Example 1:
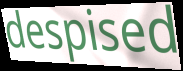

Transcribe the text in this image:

despised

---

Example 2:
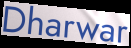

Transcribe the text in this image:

Dharwar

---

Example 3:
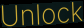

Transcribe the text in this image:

Unlock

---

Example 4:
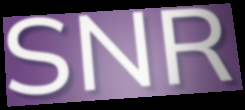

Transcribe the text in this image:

SNR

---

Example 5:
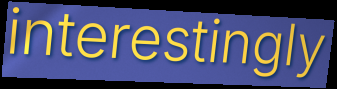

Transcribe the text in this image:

interestingly